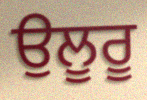
ਉਲੂਰੂ